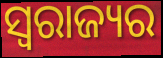
ସ୍ୱରାଜ୍ୟର